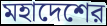
মহাদেশের